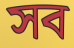
সব